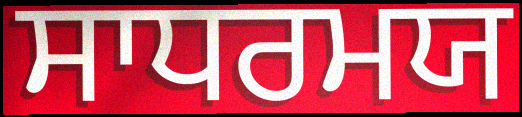
ਸਾਧਰਮਯ